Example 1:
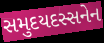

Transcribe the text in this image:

સમુદયદસ્સનેન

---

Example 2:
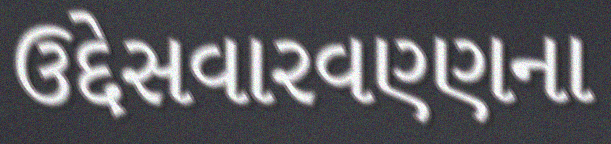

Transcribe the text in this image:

ઉદ્દેસવારવણ્ણના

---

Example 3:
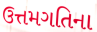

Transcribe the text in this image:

ઉત્તમગતિના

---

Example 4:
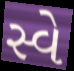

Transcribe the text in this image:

સ્વે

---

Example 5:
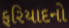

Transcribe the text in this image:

ફરિયાદનો